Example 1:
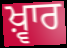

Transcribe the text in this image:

ਖ਼੍ਵਾਰ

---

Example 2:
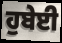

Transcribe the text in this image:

ਹੁਬੇਈ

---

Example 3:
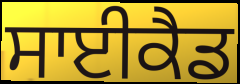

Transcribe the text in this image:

ਸਾਈਕੈਡ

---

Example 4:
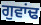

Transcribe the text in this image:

ਗੁਵਾਂਢ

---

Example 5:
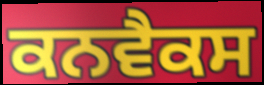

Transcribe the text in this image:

ਕਨਵੈਕਸ